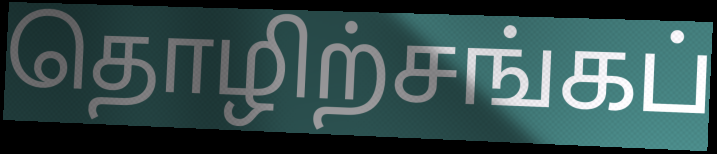
தொழிற்சங்கப்